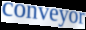
conveyor